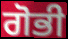
ਗੋਭੀ